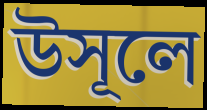
উসূলে